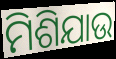
ମିଶିଯାଉ